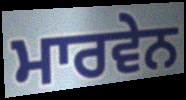
ਮਾਰਵੇਨ